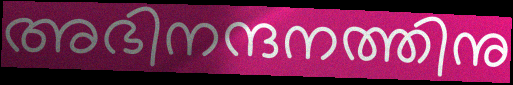
അഭിനന്ദനത്തിനു